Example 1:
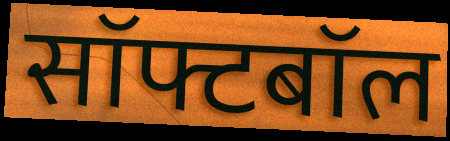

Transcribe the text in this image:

सॉफ्टबॉल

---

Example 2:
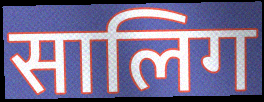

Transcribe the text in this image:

सालिग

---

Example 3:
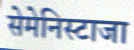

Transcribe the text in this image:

सेमेनिस्टाजा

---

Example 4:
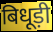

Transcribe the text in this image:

बिधूड़ी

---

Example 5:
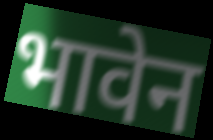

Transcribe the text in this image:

भावेन